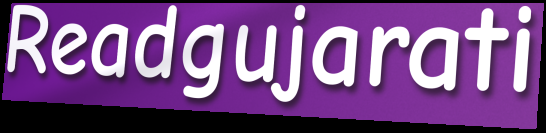
Readgujarati